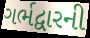
ગર્ભદ્વારની